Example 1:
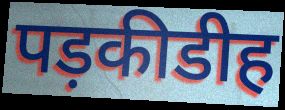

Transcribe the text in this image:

पड़कीडीह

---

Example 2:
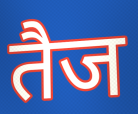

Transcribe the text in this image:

तैज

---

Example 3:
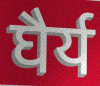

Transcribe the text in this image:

घैर्य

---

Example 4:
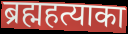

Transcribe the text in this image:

ब्रह्महत्याका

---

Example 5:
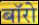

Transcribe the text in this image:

बॉरो